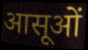
आसूओं